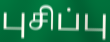
புசிப்பு